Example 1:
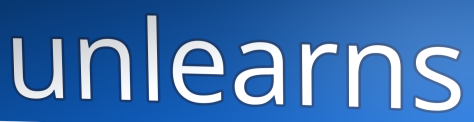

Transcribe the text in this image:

unlearns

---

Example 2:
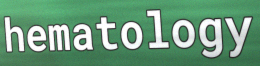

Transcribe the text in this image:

hematology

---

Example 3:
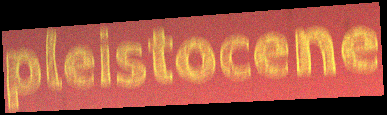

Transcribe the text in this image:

pleistocene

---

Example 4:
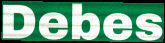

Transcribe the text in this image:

Debes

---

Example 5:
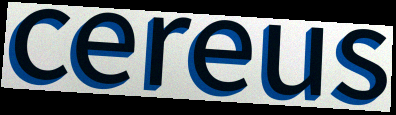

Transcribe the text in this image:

cereus